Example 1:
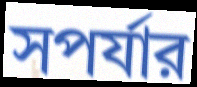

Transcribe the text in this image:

সপর্যার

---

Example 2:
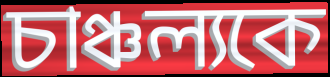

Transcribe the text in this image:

চাঞ্চল্যকে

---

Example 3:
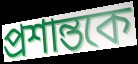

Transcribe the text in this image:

প্রশান্তকে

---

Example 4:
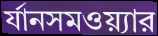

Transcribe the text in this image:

র্যানসমওয়্যার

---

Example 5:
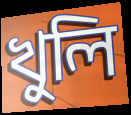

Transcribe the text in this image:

খুলি